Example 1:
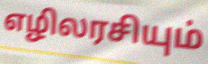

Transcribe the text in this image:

எழிலரசியும்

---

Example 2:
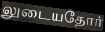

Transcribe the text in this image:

லுடையதோர்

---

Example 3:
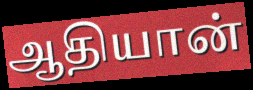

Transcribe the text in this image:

ஆதியான்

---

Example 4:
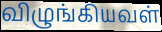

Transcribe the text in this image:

விழுங்கியவள்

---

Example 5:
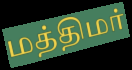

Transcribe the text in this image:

மத்திமர்